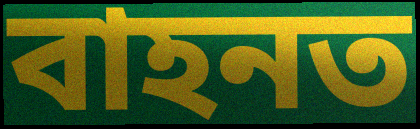
বাহনত